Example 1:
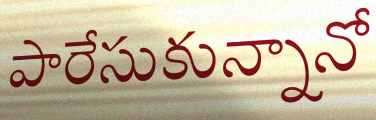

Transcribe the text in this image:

పారేసుకున్నానో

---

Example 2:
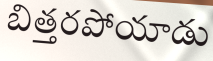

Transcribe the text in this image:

బిత్తరపోయాడు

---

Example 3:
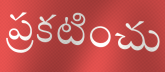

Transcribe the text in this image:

ప్రకటించు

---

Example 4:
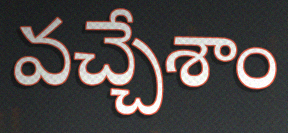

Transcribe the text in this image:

వచ్చేశాం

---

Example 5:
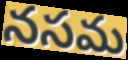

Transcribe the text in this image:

నసమ